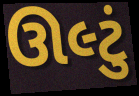
ઊલ્ટું